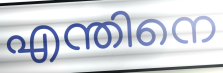
എന്തിനെ